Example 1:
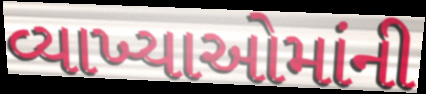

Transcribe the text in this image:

વ્યાખ્યાઓમાંની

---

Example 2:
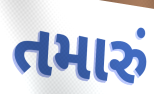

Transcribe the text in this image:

તમારું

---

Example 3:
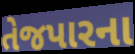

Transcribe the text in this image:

તેજપારના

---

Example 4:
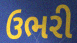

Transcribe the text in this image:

ઉભરી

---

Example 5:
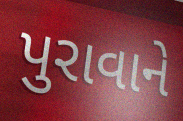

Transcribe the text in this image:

પુરાવાને